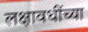
लक्षावधींच्या